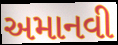
અમાનવી